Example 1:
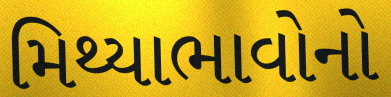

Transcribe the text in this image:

મિથ્યાભાવોનો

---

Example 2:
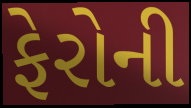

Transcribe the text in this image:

ફેરોની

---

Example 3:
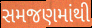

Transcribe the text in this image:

સમજણમાંથી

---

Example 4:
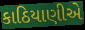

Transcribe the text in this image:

કાઠિયાણીએ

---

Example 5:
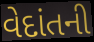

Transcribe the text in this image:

વેદાંતની